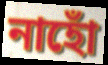
নাহোঁ